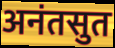
अनंतसुत